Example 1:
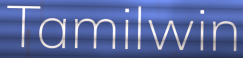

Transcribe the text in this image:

Tamilwin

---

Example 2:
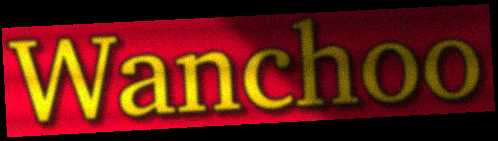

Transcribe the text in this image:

Wanchoo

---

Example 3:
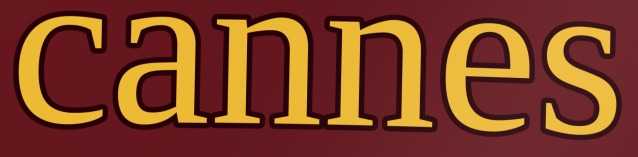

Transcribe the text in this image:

cannes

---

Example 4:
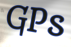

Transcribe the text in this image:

GPs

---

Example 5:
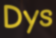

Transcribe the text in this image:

Dys